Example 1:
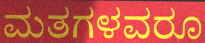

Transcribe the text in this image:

ಮತಗಳವರೂ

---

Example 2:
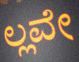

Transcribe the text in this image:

ಲ್ಲವೇ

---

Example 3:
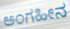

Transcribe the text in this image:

ಅಂಗಹೀನ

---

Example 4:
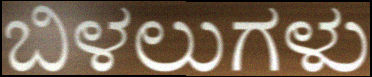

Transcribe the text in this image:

ಬಿಳಲುಗಳು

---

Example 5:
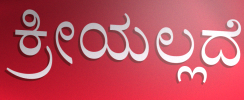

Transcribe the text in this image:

ಕ್ರೀಯಲ್ಲದೆ